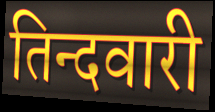
तिन्दवारी